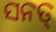
ସନତ୍